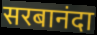
सरबानंदा